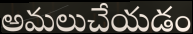
అమలుచేయడం